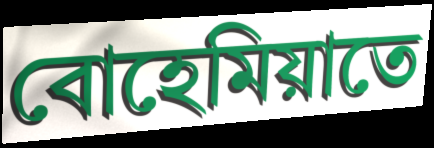
বোহেমিয়াতে